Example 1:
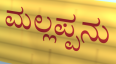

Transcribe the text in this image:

ಮಲ್ಲಪ್ಪನು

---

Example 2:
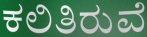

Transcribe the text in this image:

ಕಲಿತಿರುವೆ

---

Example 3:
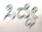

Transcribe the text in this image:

ಸಿದ್ಧೇ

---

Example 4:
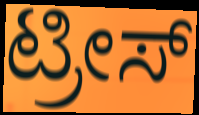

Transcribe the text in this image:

ಟ್ರೀಸ್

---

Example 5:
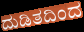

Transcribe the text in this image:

ದುಡಿತದಿಂದ